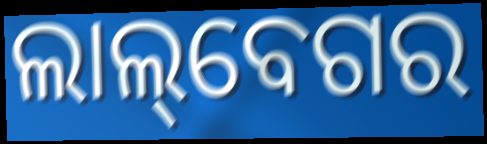
ଲାଲ୍‌ବେଗର